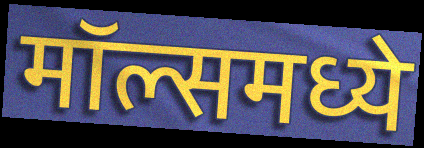
मॉल्समध्ये